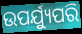
ଉପର୍ଯ୍ୟୁପରି